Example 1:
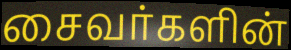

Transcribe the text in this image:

சைவர்களின்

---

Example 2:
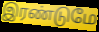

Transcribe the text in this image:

இரண்டுமே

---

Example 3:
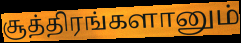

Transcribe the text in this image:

சூத்திரங்களானும்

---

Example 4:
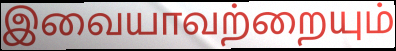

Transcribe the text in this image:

இவையாவற்றையும்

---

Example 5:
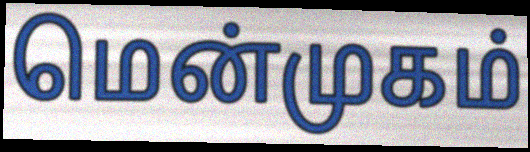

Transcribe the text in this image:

மென்முகம்